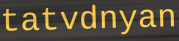
tatvdnyan